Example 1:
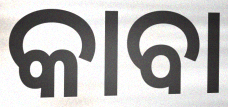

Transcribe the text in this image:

କାବା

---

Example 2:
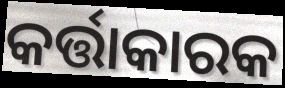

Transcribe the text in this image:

କର୍ତ୍ତାକାରକ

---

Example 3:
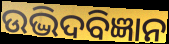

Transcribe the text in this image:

ଉଦ୍ଭିଦବିଜ୍ଞାନ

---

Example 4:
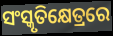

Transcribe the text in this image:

ସଂସ୍କୃତିକ୍ଷେତ୍ରରେ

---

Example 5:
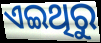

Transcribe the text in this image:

ଏଇଥିରୁ